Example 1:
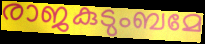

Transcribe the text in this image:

രാജകുടുംബമേ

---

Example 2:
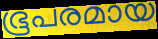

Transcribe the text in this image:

ഭൂപരമായ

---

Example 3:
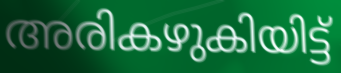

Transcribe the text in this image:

അരികഴുകിയിട്ട്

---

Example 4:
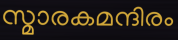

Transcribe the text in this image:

സ്മാരകമന്ദിരം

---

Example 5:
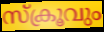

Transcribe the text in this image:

സ്ക്രൂവും